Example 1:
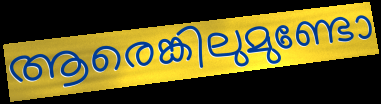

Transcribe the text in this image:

ആരെങ്കിലുമുണ്ടോ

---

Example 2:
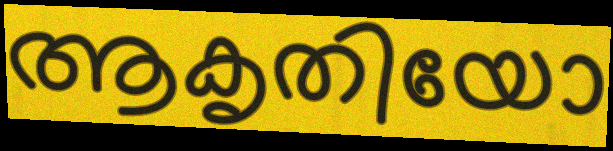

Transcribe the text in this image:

ആകൃതിയോ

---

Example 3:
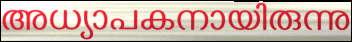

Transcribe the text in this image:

അധ്യാപകനായിരുന്നു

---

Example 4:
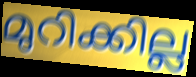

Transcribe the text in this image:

മുറിക്കില്ല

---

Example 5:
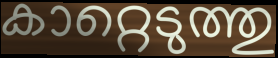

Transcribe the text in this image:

കാറ്റെടുത്തു